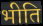
भीति